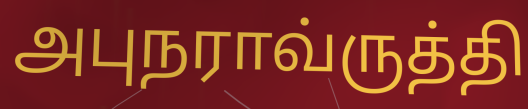
அபுநராவ்ருத்தி